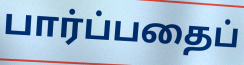
பார்ப்பதைப்